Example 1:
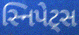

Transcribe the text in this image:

સ્નિપેટ્સ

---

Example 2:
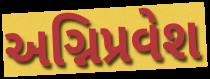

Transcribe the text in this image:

અગ્નિપ્રવેશ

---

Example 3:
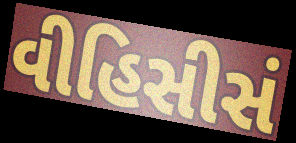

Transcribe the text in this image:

વીહિસીસં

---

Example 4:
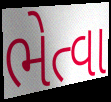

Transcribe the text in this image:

ભેત્વા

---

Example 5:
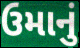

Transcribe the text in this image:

ઉમાનું